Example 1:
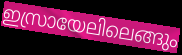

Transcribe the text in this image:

ഇസ്രായേലിലെങ്ങും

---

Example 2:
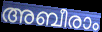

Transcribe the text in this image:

അബീരാം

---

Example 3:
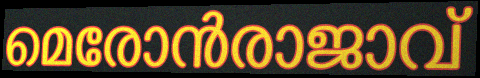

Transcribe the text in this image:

മെരോൻരാജാവ്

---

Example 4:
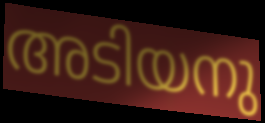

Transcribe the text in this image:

അടിയനു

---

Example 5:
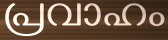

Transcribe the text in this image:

പ്രവാഹം